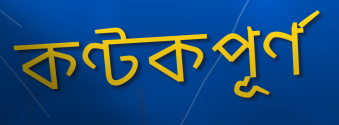
কণ্টকপূর্ণ